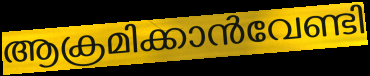
ആക്രമിക്കാൻവേണ്ടി